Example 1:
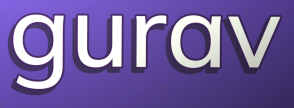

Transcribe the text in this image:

gurav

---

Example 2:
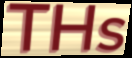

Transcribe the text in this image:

THs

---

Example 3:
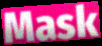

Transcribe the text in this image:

Mask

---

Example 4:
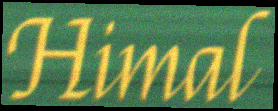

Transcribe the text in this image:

Himal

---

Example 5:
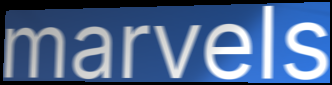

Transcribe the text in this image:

marvels